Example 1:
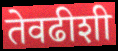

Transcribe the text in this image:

तेवढीशी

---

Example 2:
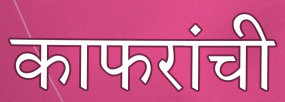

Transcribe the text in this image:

काफरांची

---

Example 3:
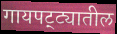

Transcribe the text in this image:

गायपट्ट्यातील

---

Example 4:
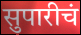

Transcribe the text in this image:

सुपारीचं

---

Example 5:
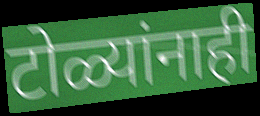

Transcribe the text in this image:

टोळ्यांनाही